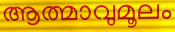
ആത്മാവുമൂലം